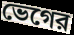
ভেগের